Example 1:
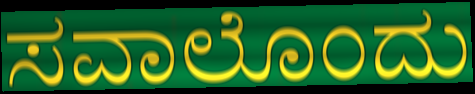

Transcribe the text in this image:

ಸವಾಲೊಂದು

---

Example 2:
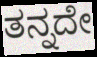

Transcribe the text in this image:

ತನ್ನದೇ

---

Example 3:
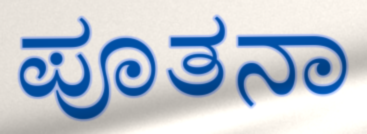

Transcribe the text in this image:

ಪೂತನಾ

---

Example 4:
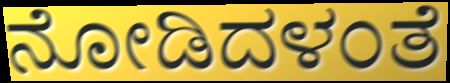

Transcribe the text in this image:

ನೋಡಿದಳಂತೆ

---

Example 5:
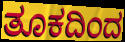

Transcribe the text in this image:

ತೂಕದಿಂದ